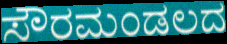
ಸೌರಮಂಡಲದ